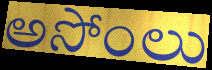
అసోంలు